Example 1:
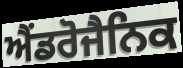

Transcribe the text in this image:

ਐਂਡਰੋਜੈਨਿਕ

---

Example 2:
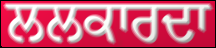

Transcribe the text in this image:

ਲਲਕਾਰਦਾ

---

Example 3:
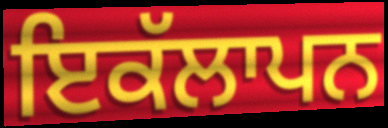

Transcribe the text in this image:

ਇਕੱਲਾਪਨ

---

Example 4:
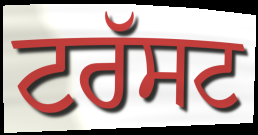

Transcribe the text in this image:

ਟਰੱਸਟ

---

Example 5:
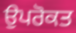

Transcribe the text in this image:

ਉਪਰੋਕਤ